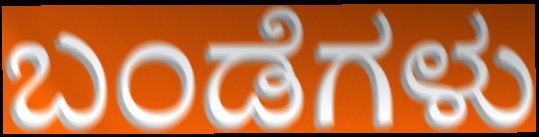
ಬಂಡೆಗಳು